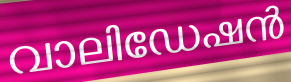
വാലിഡേഷൻ